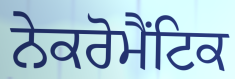
ਨੇਕਰੋਮੈਂਟਿਕ